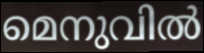
മെനുവിൽ